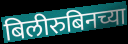
बिलीरुबिनच्या